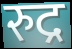
रुद्र